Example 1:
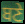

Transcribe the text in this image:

ਬਣੇ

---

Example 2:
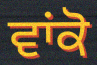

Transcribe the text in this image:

ਵਾਂਕੋ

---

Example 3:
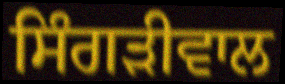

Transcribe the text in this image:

ਸਿੰਗੜੀਵਾਲ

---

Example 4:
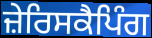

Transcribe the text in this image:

ਜ਼ੇਰਿਸਕੈਪਿੰਗ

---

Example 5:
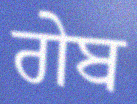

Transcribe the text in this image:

ਗੇਬ